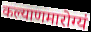
कल्याणमारोग्यं